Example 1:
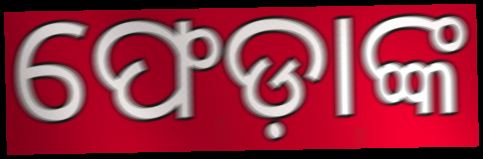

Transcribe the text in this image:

ଫେଡ଼ାଙ୍କ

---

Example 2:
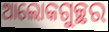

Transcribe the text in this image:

ଆଲୋକଗୁଚ୍ଛର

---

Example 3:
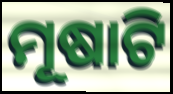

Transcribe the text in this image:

ମୂଷାଟି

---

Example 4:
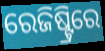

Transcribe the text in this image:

ରେଜିଷ୍ଟ୍ରିରେ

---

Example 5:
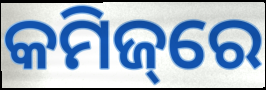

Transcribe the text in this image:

କମିଜ୍‌ରେ